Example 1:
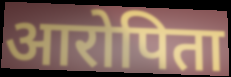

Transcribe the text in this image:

आरोपिता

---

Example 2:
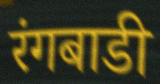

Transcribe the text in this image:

रंगबाडी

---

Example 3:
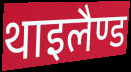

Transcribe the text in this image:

थाइलैण्ड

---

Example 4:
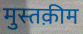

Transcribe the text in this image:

मुस्तक़ीम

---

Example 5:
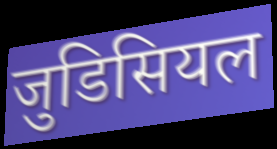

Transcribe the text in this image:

जुडिसियल